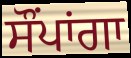
ਸੌਂਪਾਂਗਾ